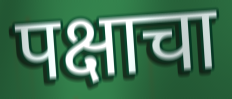
पक्षाचा